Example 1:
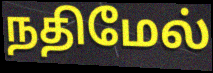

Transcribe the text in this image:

நதிமேல்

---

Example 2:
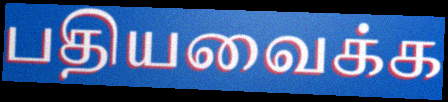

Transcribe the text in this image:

பதியவைக்க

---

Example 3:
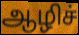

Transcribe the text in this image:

ஆழிச்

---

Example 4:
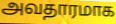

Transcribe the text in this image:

அவதாரமாக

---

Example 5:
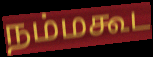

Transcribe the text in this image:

நம்மகூட